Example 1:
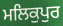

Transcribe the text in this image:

ਮਲਿਕੁਪੁਰ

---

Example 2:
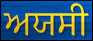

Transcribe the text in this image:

ਅਯਸੀ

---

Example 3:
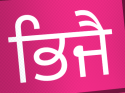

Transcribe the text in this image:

ਭਿਜੈ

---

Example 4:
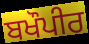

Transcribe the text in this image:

ਬਖੌਪੀਰ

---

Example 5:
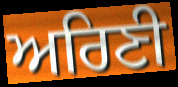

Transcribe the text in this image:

ਅਰਿਣੀ